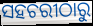
ସହଚରୀଠାରୁ